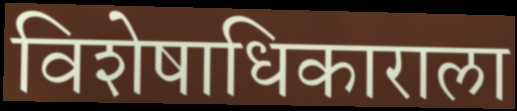
विशेषाधिकाराला